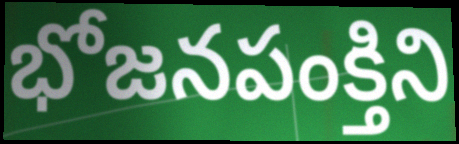
భోజనపంక్తిని